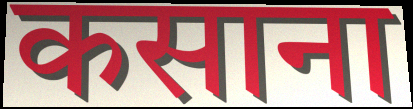
कसाना